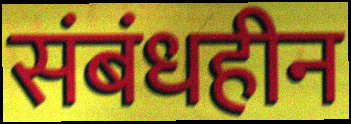
संबंधहीन